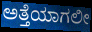
ಅತ್ತೆಯಾಗಲೀ